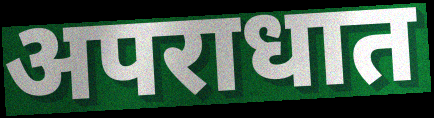
अपराधात